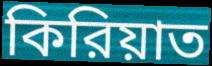
কিরিয়াত